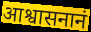
आश्वासनानं